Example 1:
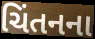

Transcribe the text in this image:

ચિંતનના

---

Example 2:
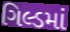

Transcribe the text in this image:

ગિલ્ડમાં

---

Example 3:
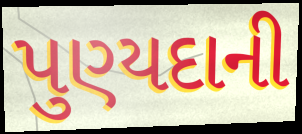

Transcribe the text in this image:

પુણ્યદાની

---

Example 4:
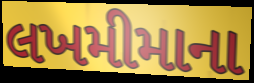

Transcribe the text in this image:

લખમીમાના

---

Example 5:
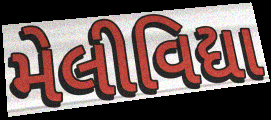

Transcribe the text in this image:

મેલીવિદ્યા